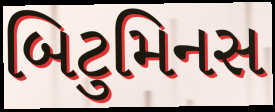
બિટુમિનસ